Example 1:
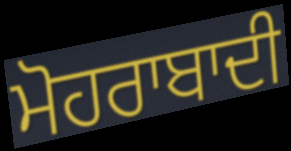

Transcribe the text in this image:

ਮੋਹਰਾਬਾਦੀ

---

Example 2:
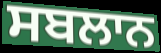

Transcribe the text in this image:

ਸਬਲਾਨ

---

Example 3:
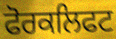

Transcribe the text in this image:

ਫੋਰਕਲਿਫਟ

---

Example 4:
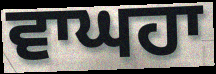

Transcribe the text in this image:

ਵਾਘਹਾ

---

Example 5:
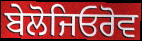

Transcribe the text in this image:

ਬੇਲੋਜਿਓਰੋਵ